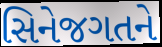
સિનેજગતને